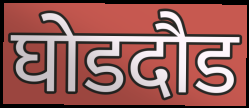
घोडदौड